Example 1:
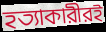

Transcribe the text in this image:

হত্যাকারীরই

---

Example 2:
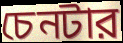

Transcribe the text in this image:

চেনটার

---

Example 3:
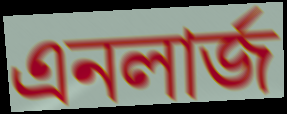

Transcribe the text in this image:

এনলার্জ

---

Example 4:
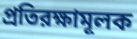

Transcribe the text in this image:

প্রতিরক্ষামূলক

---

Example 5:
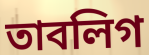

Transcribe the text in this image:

তাবলিগ